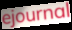
ejournal